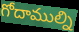
గోదాముల్ని